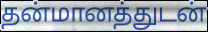
தன்மானத்துடன்